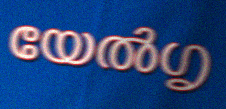
യേൽഗൃ